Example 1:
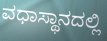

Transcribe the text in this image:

ವಧಾಸ್ಥಾನದಲ್ಲಿ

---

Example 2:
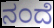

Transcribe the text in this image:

ನಂದೆ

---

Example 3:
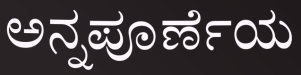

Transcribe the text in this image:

ಅನ್ನಪೂರ್ಣೆಯ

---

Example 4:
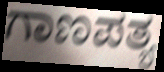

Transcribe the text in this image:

ಗಾಣಪತ್ಯ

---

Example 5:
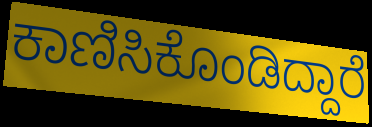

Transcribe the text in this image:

ಕಾಣಿಸಿಕೊಂಡಿದ್ದಾರೆ